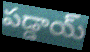
పడ్డాయ్